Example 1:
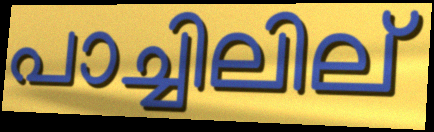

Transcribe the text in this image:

പാച്ചിലില്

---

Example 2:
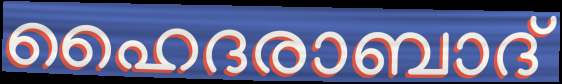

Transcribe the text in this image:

ഹൈദരാബാദ്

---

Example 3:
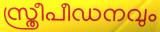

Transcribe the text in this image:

സ്ത്രീപീഡനവും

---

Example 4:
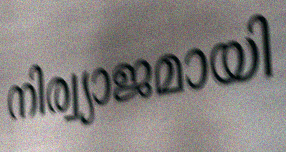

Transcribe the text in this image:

നിര്വ്യാജമായി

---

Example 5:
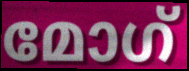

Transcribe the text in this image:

മോഗ്